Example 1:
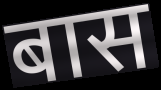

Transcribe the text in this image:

बास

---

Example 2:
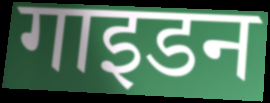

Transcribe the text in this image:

गाइडन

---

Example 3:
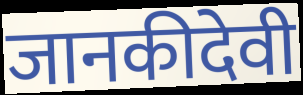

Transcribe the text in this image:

जानकीदेवी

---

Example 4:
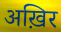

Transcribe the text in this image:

अख़िर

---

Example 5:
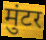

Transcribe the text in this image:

मुंटर